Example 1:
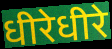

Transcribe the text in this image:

धीरेधीरे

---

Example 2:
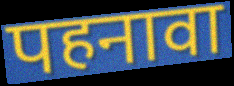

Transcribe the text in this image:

पहनावा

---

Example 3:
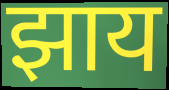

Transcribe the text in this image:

झाय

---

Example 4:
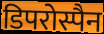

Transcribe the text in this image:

डिपरोस्पैन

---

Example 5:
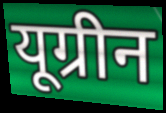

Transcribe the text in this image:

यूग्रीन